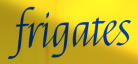
frigates